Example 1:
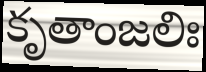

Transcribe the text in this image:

కృతాంజలిః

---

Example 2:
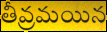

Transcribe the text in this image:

తీవ్రమయిన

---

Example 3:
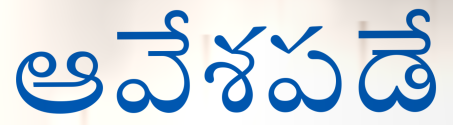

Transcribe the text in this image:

ఆవేశపడే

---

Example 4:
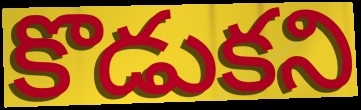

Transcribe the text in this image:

కొడుకని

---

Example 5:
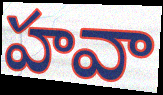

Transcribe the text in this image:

హవా